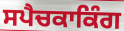
ਸਪੈਚਕਾਕਿੰਗ